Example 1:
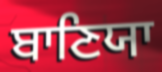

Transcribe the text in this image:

ਬਾਣਿਯਾ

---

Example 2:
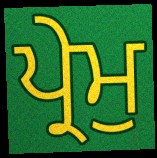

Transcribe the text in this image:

ਪ੍ਰੇਮੁ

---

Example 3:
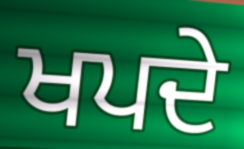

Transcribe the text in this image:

ਖਪਦੇ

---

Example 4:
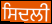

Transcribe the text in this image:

ਸਿਦਲੀ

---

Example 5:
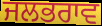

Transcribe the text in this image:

ਜਲਭਰਾਵ